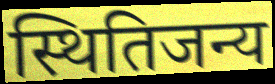
स्थितिजन्य